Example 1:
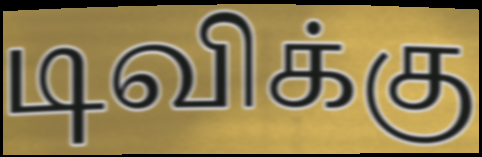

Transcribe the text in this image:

டிவிக்கு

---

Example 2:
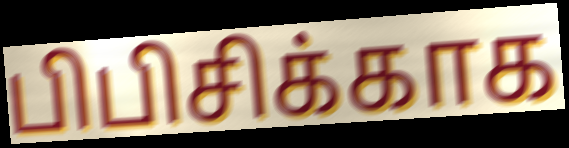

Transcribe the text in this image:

பிபிசிக்காக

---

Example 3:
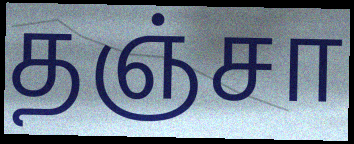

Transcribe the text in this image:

தஞ்சா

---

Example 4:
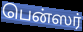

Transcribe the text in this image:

பென்ஸர்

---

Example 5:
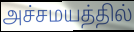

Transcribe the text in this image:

அச்சமயத்தில்